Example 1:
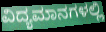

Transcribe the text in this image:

ವಿದ್ಯಮಾನಗಳಲ್ಲಿ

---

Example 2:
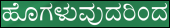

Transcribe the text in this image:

ಹೊಗಳುವುದರಿಂದ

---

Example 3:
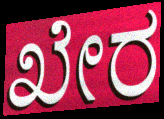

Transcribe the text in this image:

ಖೇರ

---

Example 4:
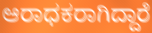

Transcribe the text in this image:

ಆರಾಧಕರಾಗಿದ್ದಾರೆ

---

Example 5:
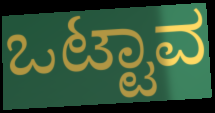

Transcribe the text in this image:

ಒಟ್ಟಾವ